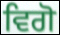
ਵਿਗੋ